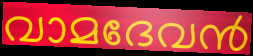
വാമദേവൻ